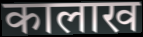
कालाख